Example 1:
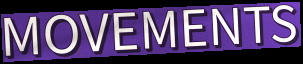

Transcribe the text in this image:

MOVEMENTS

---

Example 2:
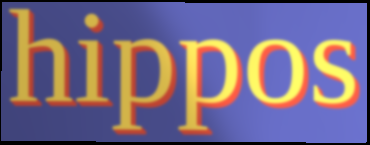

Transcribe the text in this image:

hippos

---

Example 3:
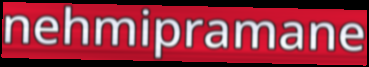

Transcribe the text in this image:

nehmipramane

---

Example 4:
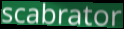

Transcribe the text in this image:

scabrator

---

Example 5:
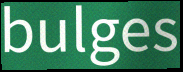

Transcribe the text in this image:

bulges